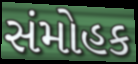
સંમોહક